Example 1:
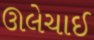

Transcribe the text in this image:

ઊલેચાઈ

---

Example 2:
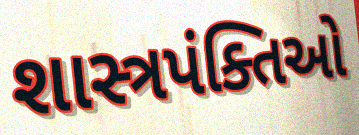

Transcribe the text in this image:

શાસ્ત્રપંક્તિઓ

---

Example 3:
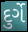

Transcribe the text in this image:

દુર્ગે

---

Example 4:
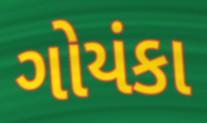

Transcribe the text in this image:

ગોયંકા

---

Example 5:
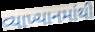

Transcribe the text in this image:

વ્યાખ્યાનમાંથી